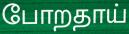
போறதாய்